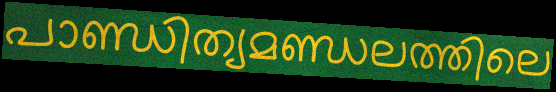
പാണ്ഡിത്യമണ്ഡലത്തിലെ